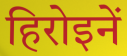
हिरोइनें